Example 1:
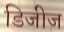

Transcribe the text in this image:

डिजीज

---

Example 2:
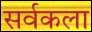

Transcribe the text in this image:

सर्वकला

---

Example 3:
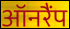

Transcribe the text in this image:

ऑनरैंप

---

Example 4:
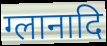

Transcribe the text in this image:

ग्लानादि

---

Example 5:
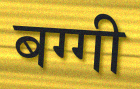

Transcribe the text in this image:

बग्गी